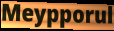
Meypporul